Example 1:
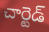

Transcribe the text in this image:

చార్టెడ్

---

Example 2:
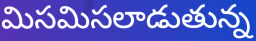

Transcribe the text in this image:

మిసమిసలాడుతున్న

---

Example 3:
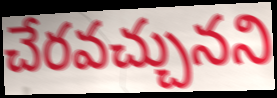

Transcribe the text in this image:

చేరవచ్చునని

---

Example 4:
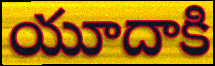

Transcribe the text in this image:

యూదాకి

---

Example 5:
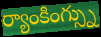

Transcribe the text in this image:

ర్యాంకింగ్స్ను